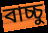
বাচ্চু